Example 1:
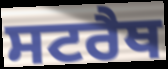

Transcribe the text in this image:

ਸਟਰੈਥ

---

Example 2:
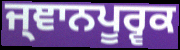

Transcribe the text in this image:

ਜ੍ਞਾਨਪੂਰ੍ਵਕ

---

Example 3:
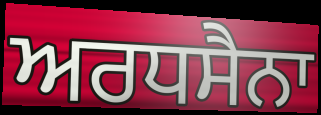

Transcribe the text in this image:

ਅਰਧਸੈਨਾ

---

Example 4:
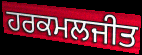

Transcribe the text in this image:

ਹਰਕਮਲਜੀਤ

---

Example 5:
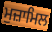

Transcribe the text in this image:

ਮੁਜ਼ਾਮਿਲ